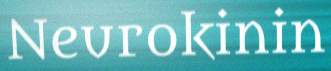
Neurokinin